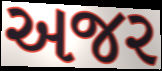
અજર